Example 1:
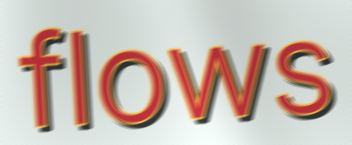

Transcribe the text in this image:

flows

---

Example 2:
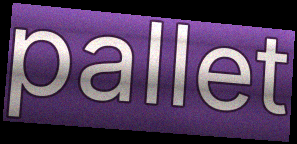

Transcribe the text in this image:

pallet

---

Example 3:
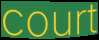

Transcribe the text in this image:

court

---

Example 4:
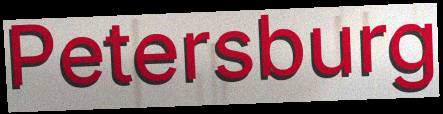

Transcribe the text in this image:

Petersburg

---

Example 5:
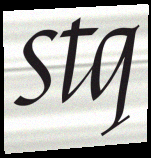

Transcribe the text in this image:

stq